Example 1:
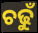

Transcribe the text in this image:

ଚଢୁଁ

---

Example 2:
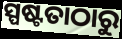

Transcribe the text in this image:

ସ୍ପଷ୍ଟତାଠାରୁ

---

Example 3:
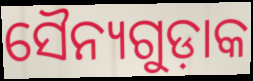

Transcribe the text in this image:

ସୈନ୍ୟଗୁଡ଼ାକ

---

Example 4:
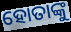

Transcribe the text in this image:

ହୋତାଙ୍କୁ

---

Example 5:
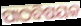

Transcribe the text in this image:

ପାଠବିଷୟକ